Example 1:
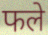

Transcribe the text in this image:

फले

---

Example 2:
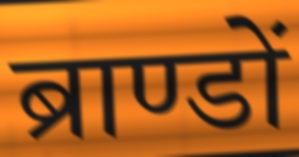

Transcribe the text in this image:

ब्राण्डों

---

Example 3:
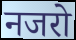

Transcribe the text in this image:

नजरो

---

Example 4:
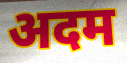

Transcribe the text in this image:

अदम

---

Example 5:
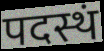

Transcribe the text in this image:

पदस्थं